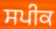
ਸਪੀਕ